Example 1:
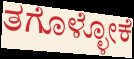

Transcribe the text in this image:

ತಗೊಳ್ಳೋಕೆ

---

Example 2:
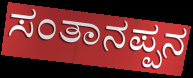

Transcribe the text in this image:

ಸಂತಾನಪ್ಪನ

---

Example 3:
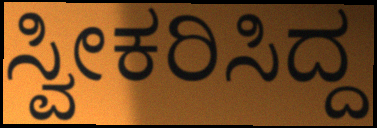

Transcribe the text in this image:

ಸ್ವೀಕರಿಸಿದ್ದ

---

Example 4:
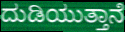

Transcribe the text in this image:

ದುಡಿಯುತ್ತಾನೆ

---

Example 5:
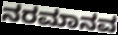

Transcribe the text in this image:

ನರಮಾನವ